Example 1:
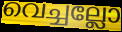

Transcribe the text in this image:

വെച്ചല്ലോ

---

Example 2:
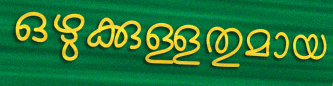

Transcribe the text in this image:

ഒഴുക്കുള്ളതുമായ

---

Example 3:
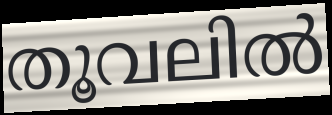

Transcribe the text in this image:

തൂവലിൽ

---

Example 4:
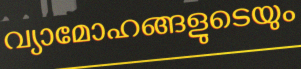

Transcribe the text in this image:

വ്യാമോഹങ്ങളുടെയും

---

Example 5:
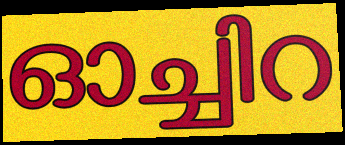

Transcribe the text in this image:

ഓച്ചിറ